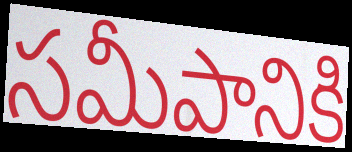
సమీపానికి